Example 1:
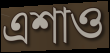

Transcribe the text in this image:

এশাও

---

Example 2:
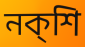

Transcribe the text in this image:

নক্‌শি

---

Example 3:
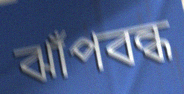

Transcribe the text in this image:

ঝাঁপবন্ধ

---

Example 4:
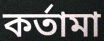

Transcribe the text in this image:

কর্তামা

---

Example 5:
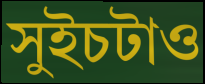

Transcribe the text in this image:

সুইচটাও